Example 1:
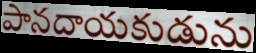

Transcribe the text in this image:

పానదాయకుడును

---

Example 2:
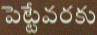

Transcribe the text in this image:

పెట్టేవరకు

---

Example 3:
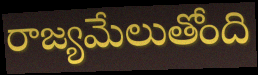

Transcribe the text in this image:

రాజ్యమేలుతోంది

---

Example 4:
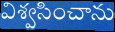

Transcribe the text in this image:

విశ్వసించాను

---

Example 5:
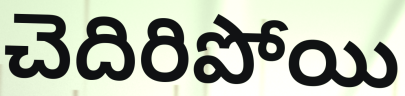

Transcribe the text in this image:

చెదిరిపోయి